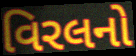
વિરલનો